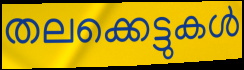
തലക്കെട്ടുകൾ